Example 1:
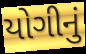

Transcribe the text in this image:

યોગીનું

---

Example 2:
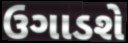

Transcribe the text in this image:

ઉગાડશે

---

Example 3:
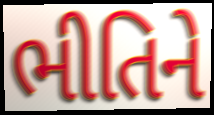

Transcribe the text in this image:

ભીતિને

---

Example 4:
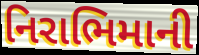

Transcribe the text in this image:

નિરાભિમાની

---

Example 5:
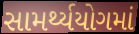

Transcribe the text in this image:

સામર્થ્યયોગમાં